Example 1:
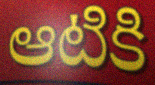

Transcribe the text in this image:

ఆటికి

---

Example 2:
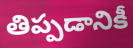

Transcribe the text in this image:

తిప్పడానికీ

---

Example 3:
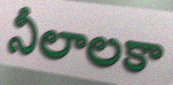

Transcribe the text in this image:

నీలాలకా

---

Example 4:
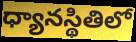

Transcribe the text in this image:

ధ్యానస్థితిలో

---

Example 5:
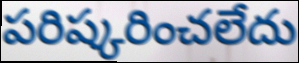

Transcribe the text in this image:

పరిష్కరించలేదు